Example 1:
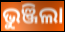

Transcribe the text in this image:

ଭୁଞ୍ଜିଲା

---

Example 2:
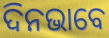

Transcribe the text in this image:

ଦିନଭାବେ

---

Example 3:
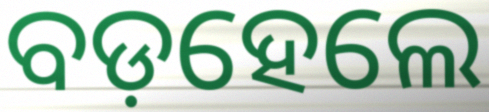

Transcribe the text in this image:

ବଡ଼ହେଲେ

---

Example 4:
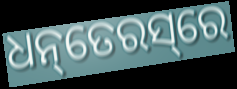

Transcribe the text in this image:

ଧନ୍‌ତେରସ୍‌ରେ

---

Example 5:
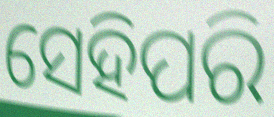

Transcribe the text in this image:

ସେହିପରି